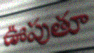
ఊపుతూ